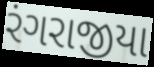
રંગરાજીયા